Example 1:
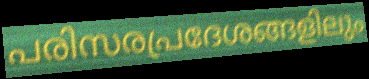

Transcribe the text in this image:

പരിസരപ്രദേശങ്ങളിലും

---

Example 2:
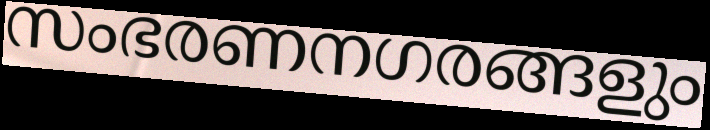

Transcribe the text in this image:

സംഭരണനഗരങ്ങളും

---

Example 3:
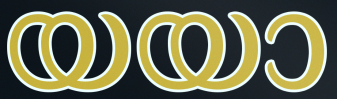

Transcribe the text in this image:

യയാ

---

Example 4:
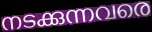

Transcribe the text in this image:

നടക്കുന്നവരെ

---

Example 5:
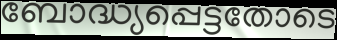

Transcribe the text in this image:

ബോദ്ധ്യപ്പെട്ടതോടെ